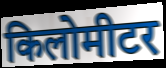
किलोमीटर